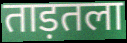
ताड़तला